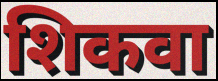
शिकवा